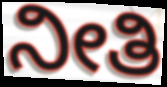
ನೀತಿ